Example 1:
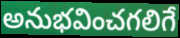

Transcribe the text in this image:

అనుభవించగలిగే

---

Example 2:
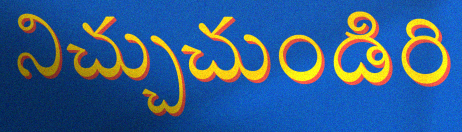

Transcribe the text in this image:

నిచ్చుచుండిరి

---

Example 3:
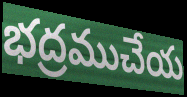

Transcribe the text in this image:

భద్రముచేయ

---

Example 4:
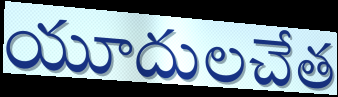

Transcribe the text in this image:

యూదులచేత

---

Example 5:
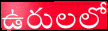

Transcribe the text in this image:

ఉరులలో